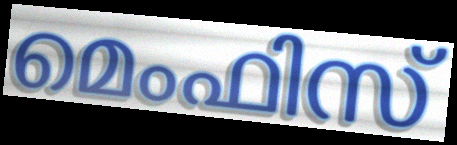
മെംഫിസ്